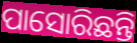
ପାସୋରିଛନ୍ତି